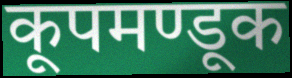
कूपमण्डूक